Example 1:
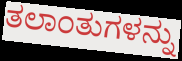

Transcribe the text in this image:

ತಲಾಂತುಗಳನ್ನು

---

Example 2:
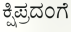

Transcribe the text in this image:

ಕ್ಷಿಪ್ರದಂಗೆ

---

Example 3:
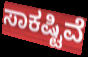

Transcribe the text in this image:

ಸಾಕಷ್ಟಿವೆ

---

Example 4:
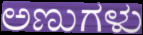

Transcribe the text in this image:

ಅಣುಗಳು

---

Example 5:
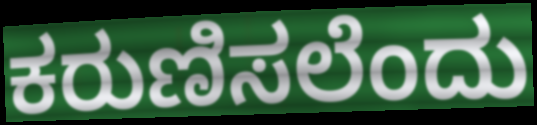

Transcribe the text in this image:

ಕರುಣಿಸಲೆಂದು